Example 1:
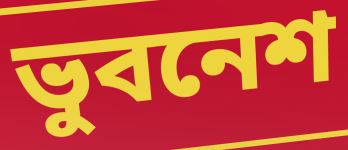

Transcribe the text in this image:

ভুবনেশ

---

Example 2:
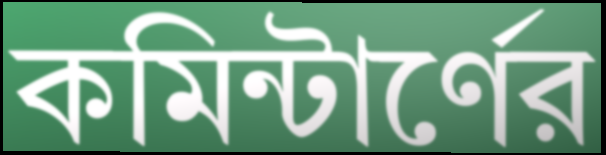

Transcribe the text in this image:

কমিন্টার্ণের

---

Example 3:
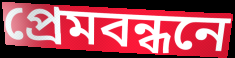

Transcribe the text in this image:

প্রেমবন্ধনে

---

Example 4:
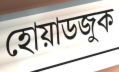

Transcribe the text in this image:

হোয়াডজুক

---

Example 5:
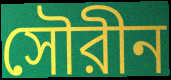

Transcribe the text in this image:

সৌরীন